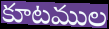
కూటముల